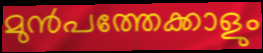
മുൻപത്തേക്കാളും